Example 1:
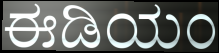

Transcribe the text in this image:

ಈಡಿಯಂ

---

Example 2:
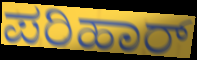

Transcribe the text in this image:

ಪರಿಹಾರ್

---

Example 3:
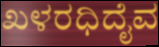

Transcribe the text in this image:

ಖಳರಧಿದೈವ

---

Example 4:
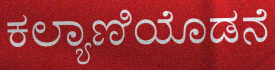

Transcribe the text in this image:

ಕಲ್ಯಾಣಿಯೊಡನೆ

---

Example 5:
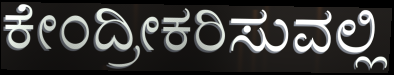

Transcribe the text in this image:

ಕೇಂದ್ರೀಕರಿಸುವಲ್ಲಿ